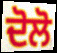
ਦੋਲੋ